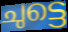
ചുട്ടെ